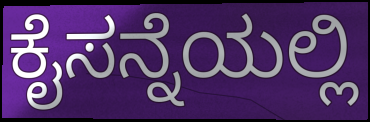
ಕೈಸನ್ನೆಯಲ್ಲಿ